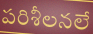
పరిశీలనలే